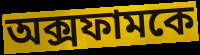
অক্সফামকে